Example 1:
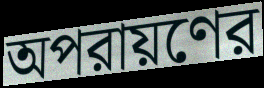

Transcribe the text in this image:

অপরায়ণের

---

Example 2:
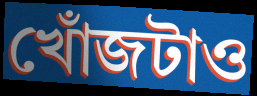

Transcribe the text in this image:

খোঁজটাও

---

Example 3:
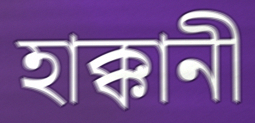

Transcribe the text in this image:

হাক্কানী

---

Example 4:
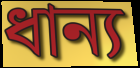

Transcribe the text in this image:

ধান্য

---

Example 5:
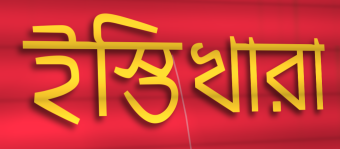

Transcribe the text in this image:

ইস্তিখারা